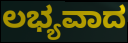
ಲಭ್ಯವಾದ